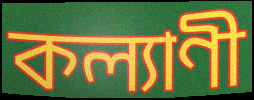
কল্যাণী